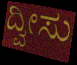
ದ್ವೀಸು